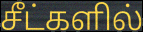
சீட்களில்